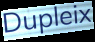
Dupleix